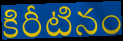
కిరీటినం